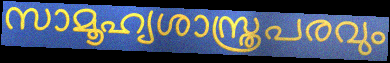
സാമൂഹ്യശാസ്ത്രപരവും